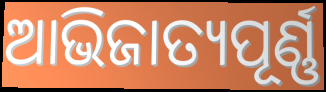
ଆଭିଜାତ୍ୟପୂର୍ଣ୍ଣ